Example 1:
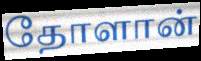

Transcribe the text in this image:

தோளான்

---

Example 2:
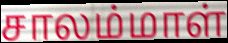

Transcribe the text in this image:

சாலம்மாள்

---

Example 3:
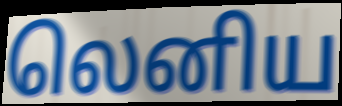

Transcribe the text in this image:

லெனிய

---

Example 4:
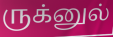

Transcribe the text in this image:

ருக்னுல்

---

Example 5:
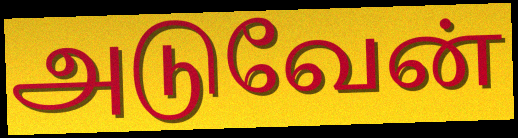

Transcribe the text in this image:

அடுவேன்